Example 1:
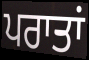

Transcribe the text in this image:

ਪਰਾਤਾਂ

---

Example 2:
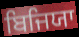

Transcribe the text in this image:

ਬਿਜਿਯਾ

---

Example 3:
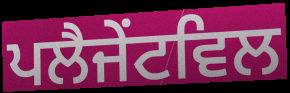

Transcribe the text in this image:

ਪਲੈਜੇਂਟਵਿਲ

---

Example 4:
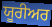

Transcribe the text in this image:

ਯੂਰੀਅਰ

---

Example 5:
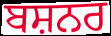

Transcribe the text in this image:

ਬਸ਼ਨਰ